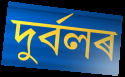
দুৰ্বলৰ